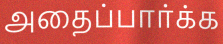
அதைப்பார்க்க